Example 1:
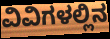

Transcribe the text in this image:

ವಿವಿಗಳಲ್ಲಿನ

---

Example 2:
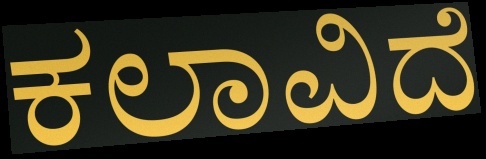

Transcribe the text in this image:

ಕಲಾವಿದೆ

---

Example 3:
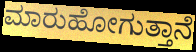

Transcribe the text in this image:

ಮಾರುಹೋಗುತ್ತಾನೆ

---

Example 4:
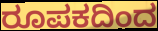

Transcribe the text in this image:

ರೂಪಕದಿಂದ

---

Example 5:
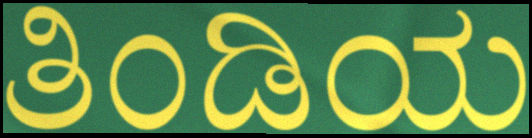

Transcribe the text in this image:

ತಿಂಡಿಯ